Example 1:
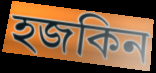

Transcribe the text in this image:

হজকিন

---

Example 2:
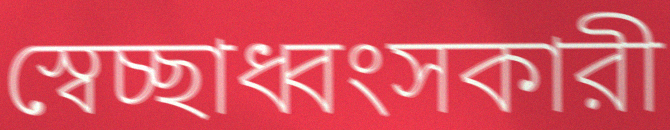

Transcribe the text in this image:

স্বেচ্ছাধ্বংসকারী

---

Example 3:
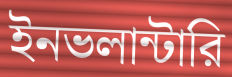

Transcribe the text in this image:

ইনভলান্টারি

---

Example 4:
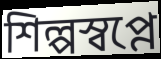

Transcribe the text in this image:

শিল্পস্বপ্নে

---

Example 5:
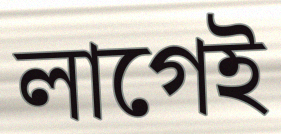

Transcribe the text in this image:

লাগেই